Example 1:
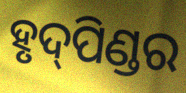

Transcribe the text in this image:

ହୃଦ୍‌ପିଣ୍ଡର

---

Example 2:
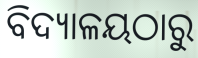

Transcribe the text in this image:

ବିଦ୍ୟାଳୟଠାରୁ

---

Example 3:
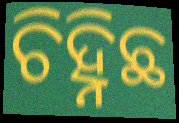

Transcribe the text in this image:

ଚିହ୍ନିଛ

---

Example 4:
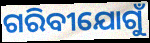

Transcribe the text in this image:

ଗରିବୀଯୋଗୁଁ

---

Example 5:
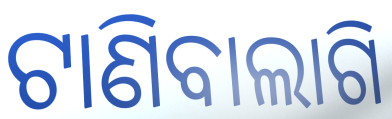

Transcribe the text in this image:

ଟାଣିବାଲାଗି